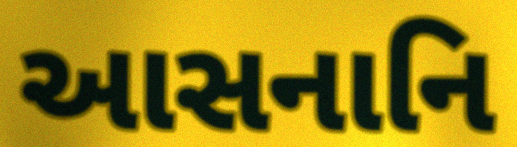
આસનાનિ